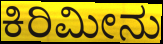
ಕಿರಿಮೀನು